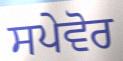
ਸਪੇਵੋਰ